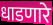
धाडणारे